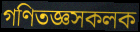
গণিতজ্ঞসকলক